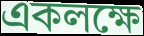
একলক্ষে